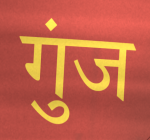
गुंज